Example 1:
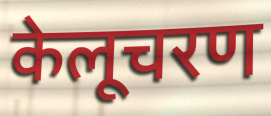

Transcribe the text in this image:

केलूचरण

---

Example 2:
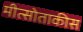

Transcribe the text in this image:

मीत्सोताकीस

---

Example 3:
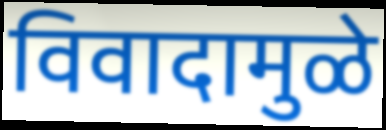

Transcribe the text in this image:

विवादामुळे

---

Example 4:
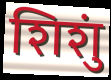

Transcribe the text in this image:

शिशुं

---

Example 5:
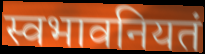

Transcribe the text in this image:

स्वभावनियतं